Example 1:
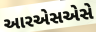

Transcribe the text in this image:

આરએસએસે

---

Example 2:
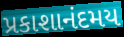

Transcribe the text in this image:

પ્રકાશાનંદમય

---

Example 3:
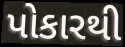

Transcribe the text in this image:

પોકારથી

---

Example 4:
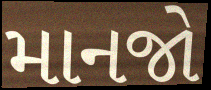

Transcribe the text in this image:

માનજો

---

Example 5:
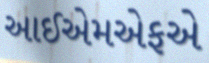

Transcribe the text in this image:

આઈએમએફએ